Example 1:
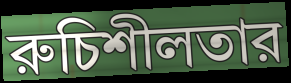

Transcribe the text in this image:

রুচিশীলতার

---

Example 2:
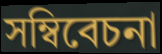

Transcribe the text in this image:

সম্বিবেচনা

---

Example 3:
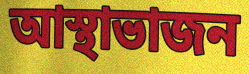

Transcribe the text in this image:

আস্থাভাজন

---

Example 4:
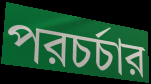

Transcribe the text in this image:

পরচর্চার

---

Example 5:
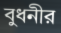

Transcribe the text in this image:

বুধনীর